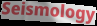
Seismology